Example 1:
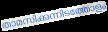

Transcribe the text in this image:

താമസിക്കുന്നിടത്തോളം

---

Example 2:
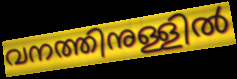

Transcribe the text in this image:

വനത്തിനുള്ളിൽ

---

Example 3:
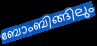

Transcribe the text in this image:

ബോംബിങ്ങിലും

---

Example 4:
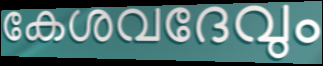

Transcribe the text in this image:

കേശവദേവും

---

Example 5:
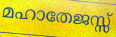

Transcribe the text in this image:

മഹാതേജസ്സ്